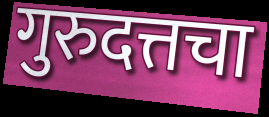
गुरुदत्तचा